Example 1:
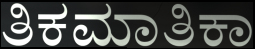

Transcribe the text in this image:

ತಿಕಮಾತಿಕಾ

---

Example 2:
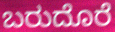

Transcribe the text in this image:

ಬರುದೊರೆ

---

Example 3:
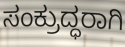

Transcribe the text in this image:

ಸಂಕ್ರುದ್ಧರಾಗಿ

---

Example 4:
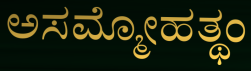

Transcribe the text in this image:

ಅಸಮ್ಮೋಹತ್ಥಂ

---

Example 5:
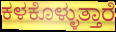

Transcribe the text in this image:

ಕಳಕೊಳ್ಳುತ್ತಾರೆ